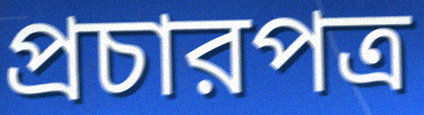
প্রচারপত্র